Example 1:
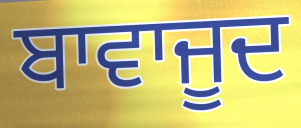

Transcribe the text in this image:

ਬਾਵਾਜੂਦ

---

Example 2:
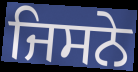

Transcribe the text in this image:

ਜਿਸਨੇ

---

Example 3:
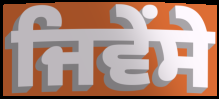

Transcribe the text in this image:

ਜਿਵੇਂਸੇ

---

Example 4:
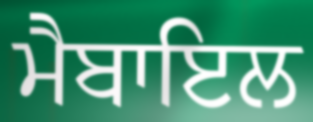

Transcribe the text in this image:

ਮੈਬਾਇਲ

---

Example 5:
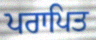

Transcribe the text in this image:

ਪਰਾਪਿਤ